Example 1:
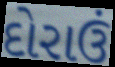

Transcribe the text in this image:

દોરાઉં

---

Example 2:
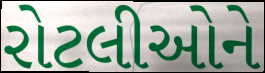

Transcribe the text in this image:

રોટલીઓને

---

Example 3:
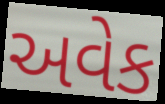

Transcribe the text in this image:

અવેક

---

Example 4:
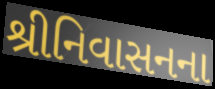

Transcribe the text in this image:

શ્રીનિવાસનના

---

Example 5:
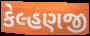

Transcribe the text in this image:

કેલ્હણજી